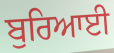
ਬੁਰਿਆਈ